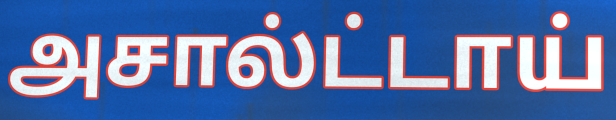
அசால்ட்டாய்